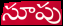
సూపు